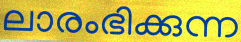
ലാരംഭിക്കുന്ന